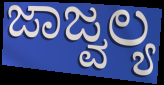
ಜಾಜ್ವಲ್ಯ